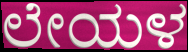
ಲೇಯಳ